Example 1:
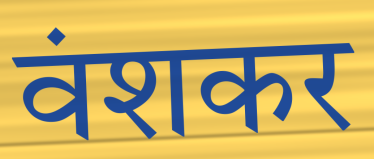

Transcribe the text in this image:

वंशकर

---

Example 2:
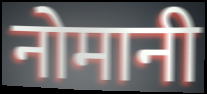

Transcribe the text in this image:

नोमानी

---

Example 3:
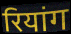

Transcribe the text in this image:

रियांग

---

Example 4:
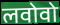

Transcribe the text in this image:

लवोवो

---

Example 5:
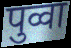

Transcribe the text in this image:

पुव्वा